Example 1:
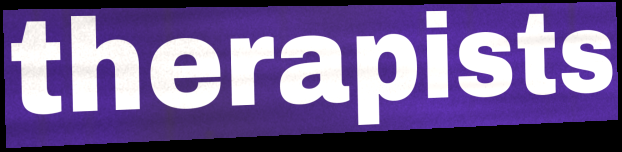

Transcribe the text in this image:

therapists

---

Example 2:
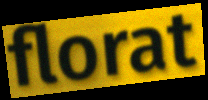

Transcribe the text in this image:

florat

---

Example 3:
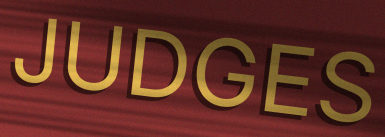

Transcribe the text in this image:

JUDGES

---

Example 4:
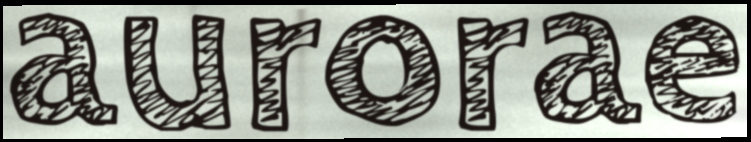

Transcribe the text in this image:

aurorae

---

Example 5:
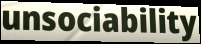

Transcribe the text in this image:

unsociability